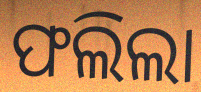
ଫଲିଲା